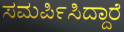
ಸಮರ್ಪಿಸಿದ್ದಾರೆ